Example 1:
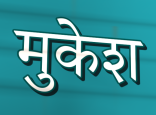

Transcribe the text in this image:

मुकेश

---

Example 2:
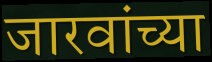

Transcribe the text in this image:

जारवांच्या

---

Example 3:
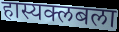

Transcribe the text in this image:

हास्यक्लबला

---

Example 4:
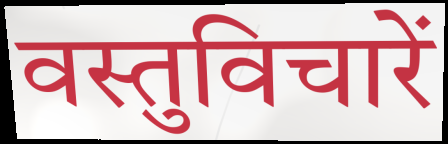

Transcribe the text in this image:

वस्तुविचारें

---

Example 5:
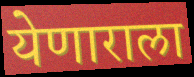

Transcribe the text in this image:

येणाराला